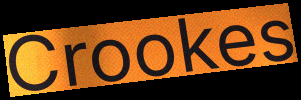
Crookes